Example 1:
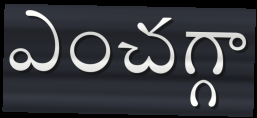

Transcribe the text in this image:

ఎంచగ్గా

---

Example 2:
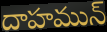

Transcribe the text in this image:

దాహమున్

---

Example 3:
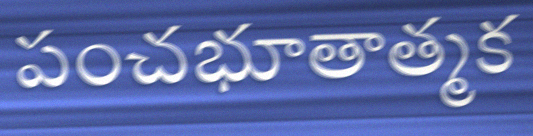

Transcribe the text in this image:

పంచభూతాత్మక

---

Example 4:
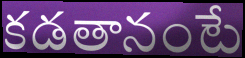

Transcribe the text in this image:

కడతానంటే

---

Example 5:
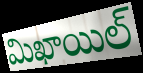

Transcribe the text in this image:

మిఖాయిల్